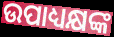
ଉପାଧ୍ୟକ୍ଷଙ୍କ